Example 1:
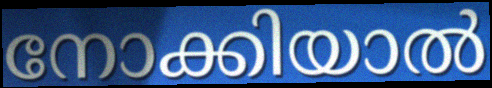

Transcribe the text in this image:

നോക്കിയാൽ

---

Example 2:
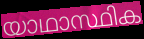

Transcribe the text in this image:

യാഥാസ്ഥിക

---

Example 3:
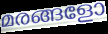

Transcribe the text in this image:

മരങ്ങളോ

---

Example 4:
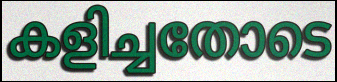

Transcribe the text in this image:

കളിച്ചതോടെ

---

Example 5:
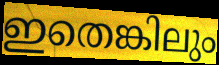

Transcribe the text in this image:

ഇതെങ്കിലും